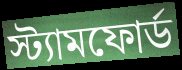
স্ট্যামফোর্ড